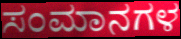
ಸಂಮಾನಗಳ